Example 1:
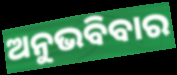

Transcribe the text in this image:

ଅନୁଭବିବାର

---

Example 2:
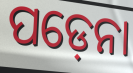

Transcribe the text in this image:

ପଡ଼େନା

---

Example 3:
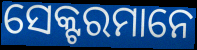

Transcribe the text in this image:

ସେକ୍ଟରମାନେ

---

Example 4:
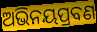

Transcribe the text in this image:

ଅଭିନୟପ୍ରବଣ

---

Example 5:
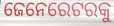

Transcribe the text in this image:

ଜେନେରେଟରକୁ